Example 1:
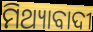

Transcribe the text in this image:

ମିଥ୍ୟାବାଦୀ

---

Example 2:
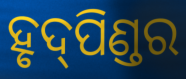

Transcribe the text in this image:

ହୃଦ୍‌ପିଣ୍ଡର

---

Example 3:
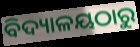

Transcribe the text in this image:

ବିଦ୍ୟାଳୟଠାରୁ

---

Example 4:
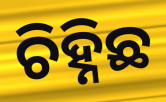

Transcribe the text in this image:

ଚିହ୍ନିଛ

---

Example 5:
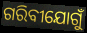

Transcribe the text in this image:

ଗରିବୀଯୋଗୁଁ